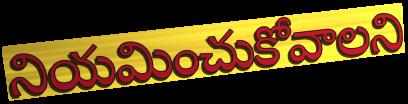
నియమించుకోవాలని